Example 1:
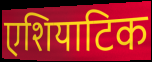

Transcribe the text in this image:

एशियाटिक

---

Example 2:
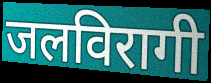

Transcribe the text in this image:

जलविरागी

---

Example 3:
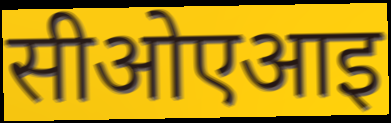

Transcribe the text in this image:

सीओएआइ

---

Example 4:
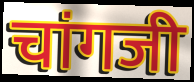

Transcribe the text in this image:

चांगजी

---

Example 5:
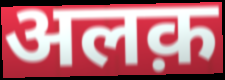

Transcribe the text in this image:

अलक़